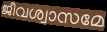
ജീവശ്വാസമേ